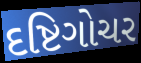
દષ્ટિગોચર